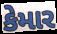
કેમાર